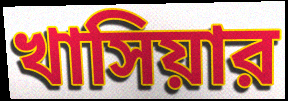
খাসিয়ার